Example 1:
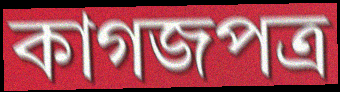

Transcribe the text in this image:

কাগজপত্ৰ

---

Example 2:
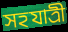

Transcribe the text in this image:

সহযাত্ৰী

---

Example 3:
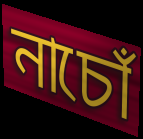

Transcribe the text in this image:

নাচোঁ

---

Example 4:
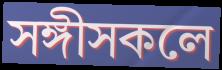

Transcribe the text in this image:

সঙ্গীসকলে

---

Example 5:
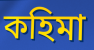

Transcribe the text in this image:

কহিমা